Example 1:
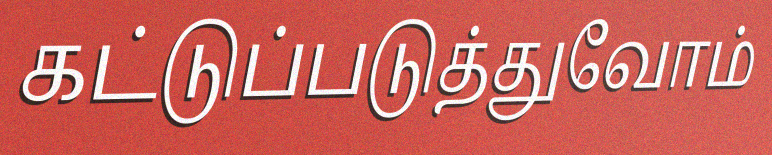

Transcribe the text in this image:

கட்டுப்படுத்துவோம்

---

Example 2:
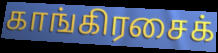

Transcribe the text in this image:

காங்கிரசைக்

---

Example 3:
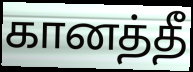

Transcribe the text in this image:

கானத்தீ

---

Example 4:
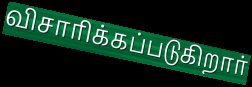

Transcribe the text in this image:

விசாரிக்கப்படுகிறார்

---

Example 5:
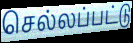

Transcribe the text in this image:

செல்லப்பட்டு